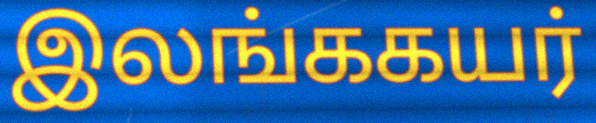
இலங்ககயர்